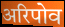
अरिपोव